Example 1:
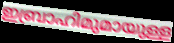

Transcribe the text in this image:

ഇബ്രാഹിമുമായുള്ള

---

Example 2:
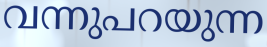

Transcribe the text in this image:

വന്നുപറയുന്ന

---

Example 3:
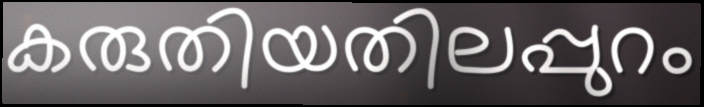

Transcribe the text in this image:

കരുതിയതിലപ്പുറം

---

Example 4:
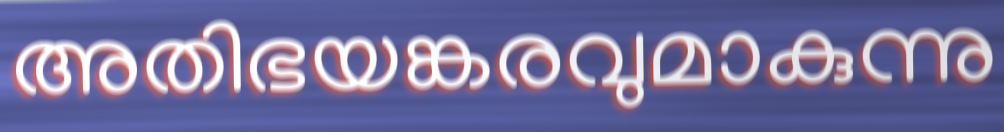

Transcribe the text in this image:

അതിഭയങ്കരവുമാകുന്നു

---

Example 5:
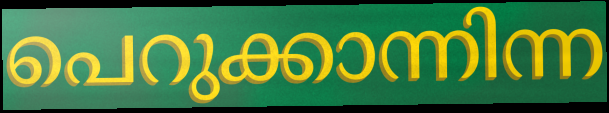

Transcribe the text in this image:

പെറുക്കാന്നിന്ന